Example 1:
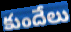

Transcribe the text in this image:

కుందేలు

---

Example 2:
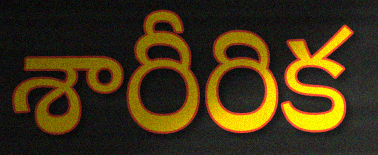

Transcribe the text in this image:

శారీరిక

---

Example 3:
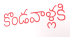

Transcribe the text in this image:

కొండవాళ్లకి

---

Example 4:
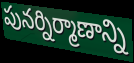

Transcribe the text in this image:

పునర్నిర్మాణాన్ని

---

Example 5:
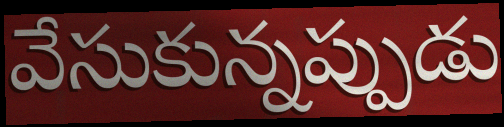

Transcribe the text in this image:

వేసుకున్నప్పుడు